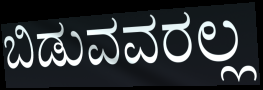
ಬಿಡುವವರಲ್ಲ